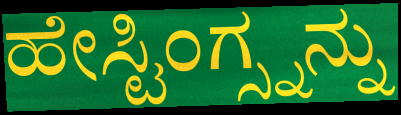
ಹೇಸ್ಟಿಂಗ್ಸ್ನನ್ನು